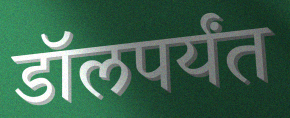
डॉलपर्यंत